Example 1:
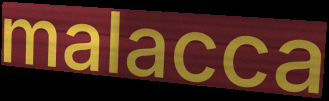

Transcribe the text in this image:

malacca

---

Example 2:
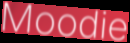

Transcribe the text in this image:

Moodie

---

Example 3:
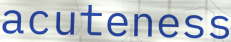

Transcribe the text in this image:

acuteness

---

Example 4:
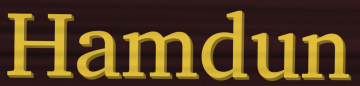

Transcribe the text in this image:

Hamdun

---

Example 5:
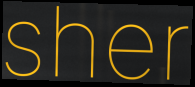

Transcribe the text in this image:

sher